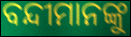
ବନ୍ଦୀମାନଙ୍କୁ